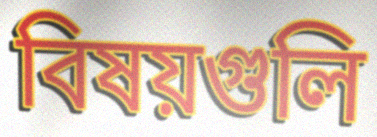
বিষয়গুলি